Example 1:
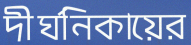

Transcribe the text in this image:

দীর্ঘনিকায়ের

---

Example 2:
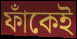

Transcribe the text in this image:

ফাঁকেই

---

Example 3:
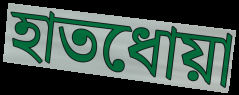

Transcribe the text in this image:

হাতধোয়া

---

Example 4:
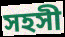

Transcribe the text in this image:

সহসী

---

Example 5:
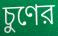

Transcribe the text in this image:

চুণের